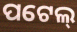
ପଟେଲ୍